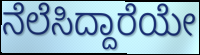
ನೆಲೆಸಿದ್ದಾರೆಯೇ